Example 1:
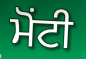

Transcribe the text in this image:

ਮੋਂਟੀ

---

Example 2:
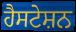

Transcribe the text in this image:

ਹੈਸਟੇਸ਼ਨ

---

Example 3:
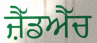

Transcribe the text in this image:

ਜ਼ੈੱਡਐੱਚ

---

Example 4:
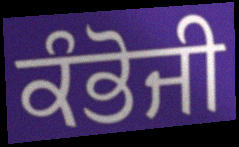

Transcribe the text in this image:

ਕੰਭੋਜੀ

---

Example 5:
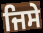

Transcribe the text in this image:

ਜਿਸੇ